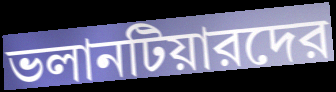
ভলানটিয়ারদের